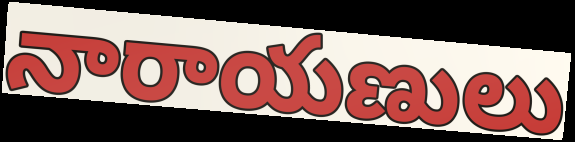
నారాయణులు